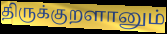
திருக்குறளானும்